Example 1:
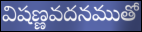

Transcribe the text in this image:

విషణ్ణవదనముతో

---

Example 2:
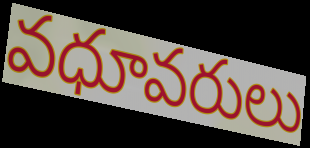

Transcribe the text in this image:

వధూవరులు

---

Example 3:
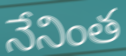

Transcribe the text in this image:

నేనింత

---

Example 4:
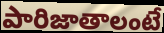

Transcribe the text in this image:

పారిజాతాలంటే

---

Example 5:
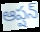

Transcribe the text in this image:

ఆప్షన్